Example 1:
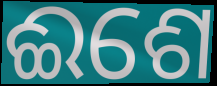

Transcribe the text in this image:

ଈଶେ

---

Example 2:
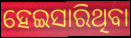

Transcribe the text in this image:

ହେଇସାରିଥିବା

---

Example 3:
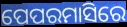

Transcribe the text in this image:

ପେପରମାସିରେ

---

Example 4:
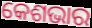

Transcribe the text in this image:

କେଶଭାର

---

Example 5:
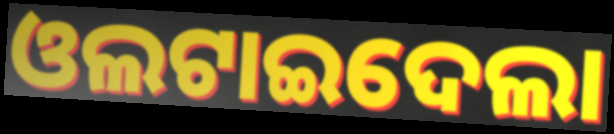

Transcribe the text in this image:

ଓଲଟାଇଦେଲା